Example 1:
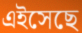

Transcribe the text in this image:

এইসেছে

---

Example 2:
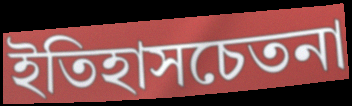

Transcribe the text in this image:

ইতিহাসচেতনা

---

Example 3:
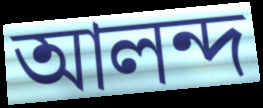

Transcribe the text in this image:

আলন্দ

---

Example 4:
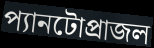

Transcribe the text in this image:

প্যানটোপ্রাজল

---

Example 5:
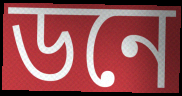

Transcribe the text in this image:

ডনে